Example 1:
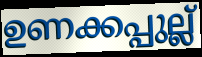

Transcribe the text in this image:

ഉണക്കപ്പുല്ല്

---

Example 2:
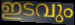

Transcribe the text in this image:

ഇടവും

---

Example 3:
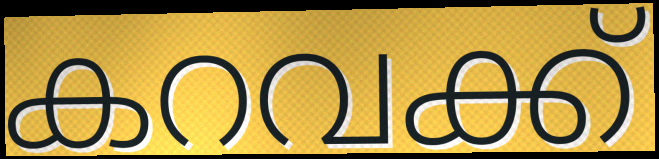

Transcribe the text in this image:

കറവക്ക്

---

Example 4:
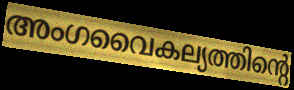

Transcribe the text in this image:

അംഗവൈകല്യത്തിന്റെ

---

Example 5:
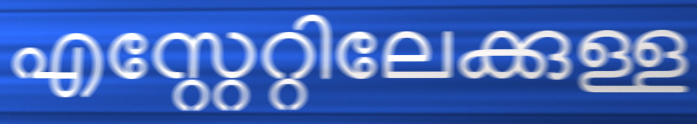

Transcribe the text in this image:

എസ്റ്റേറ്റിലേക്കുള്ള